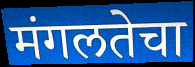
मंगलतेचा